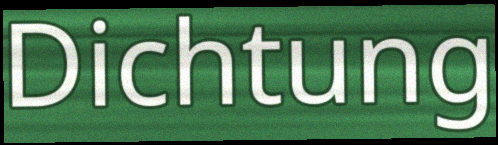
Dichtung